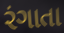
રંગાતા